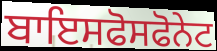
ਬਾਇਸਫੋਸਫੋਨੇਟ